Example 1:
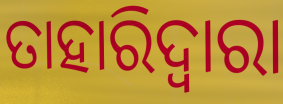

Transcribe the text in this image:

ତାହାରିଦ୍ଵାରା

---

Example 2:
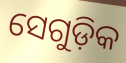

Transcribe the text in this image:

ସେଗୁଡ଼ିକ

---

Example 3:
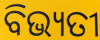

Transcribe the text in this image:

ବିଭ୍ୟତୀ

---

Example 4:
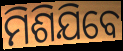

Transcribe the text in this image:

ମିଶିଯିବେ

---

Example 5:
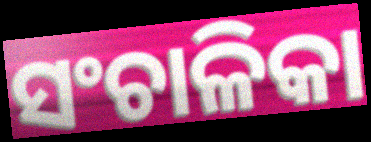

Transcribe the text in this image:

ସଂଚାଳିକା